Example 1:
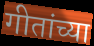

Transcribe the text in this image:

गीतांच्या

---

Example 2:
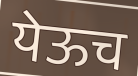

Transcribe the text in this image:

येऊच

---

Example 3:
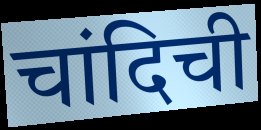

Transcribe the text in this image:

चांदिची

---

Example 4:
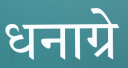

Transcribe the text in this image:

धनाग्रे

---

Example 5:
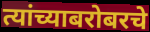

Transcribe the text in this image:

त्यांच्याबरोबरचे